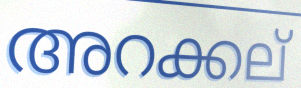
അറക്കല്